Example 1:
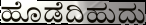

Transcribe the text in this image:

ಹೊಡೆದಿಹುದು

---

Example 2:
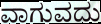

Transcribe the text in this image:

ವಾಗುವದು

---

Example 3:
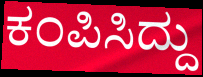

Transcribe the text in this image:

ಕಂಪಿಸಿದ್ದು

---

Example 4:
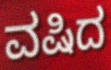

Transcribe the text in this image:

ವಷಿದ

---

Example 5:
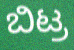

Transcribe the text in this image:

ಬಿಟ್ರ